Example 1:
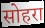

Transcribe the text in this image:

सोहरा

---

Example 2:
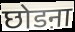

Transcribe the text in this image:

छोडऩा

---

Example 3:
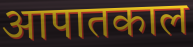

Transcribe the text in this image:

आपातकाल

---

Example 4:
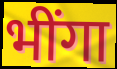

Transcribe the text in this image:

भींगा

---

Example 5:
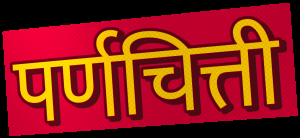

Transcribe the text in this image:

पर्णचित्ती